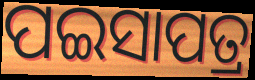
ପଇସାପତ୍ର